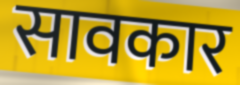
सावकार